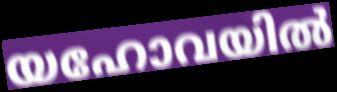
യഹോവയിൽ